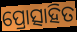
ପ୍ରୋତ୍ସାହିତ